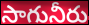
సాగునీరు